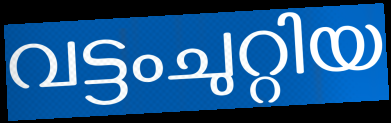
വട്ടംചുറ്റിയ